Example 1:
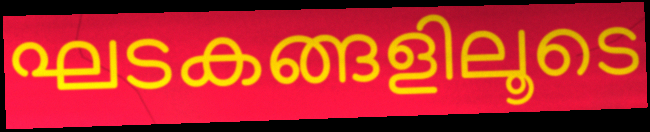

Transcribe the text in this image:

ഘടകങ്ങളിലൂടെ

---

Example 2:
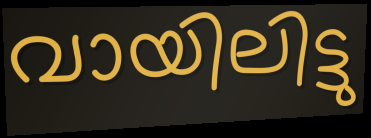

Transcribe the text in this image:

വായിലിട്ടു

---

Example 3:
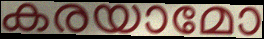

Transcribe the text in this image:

കരയാമോ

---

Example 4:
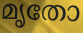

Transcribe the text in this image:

മൃതോ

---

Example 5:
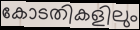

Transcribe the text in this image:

കോടതികളിലും